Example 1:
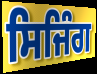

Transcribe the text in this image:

ਸਿਜਿੰਗ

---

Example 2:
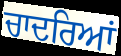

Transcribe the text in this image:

ਚਾਦਰਿਆਂ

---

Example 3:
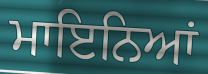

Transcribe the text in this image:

ਮਾਇਨਿਆਂ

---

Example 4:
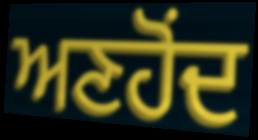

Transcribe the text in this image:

ਅਣਹੋਂਦ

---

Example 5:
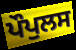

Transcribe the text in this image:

ਪੌਪੁਲਸ